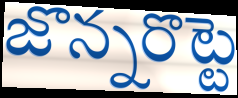
జొన్నరొట్టె